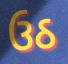
ઉઠ